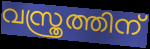
വസ്ത്രത്തിന്